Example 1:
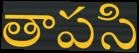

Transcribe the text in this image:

తాపసి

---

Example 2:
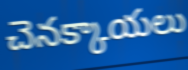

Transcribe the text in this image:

చెనక్కాయలు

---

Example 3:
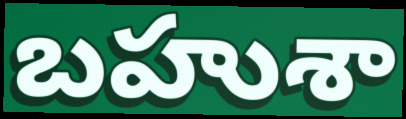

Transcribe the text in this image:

బహుశా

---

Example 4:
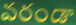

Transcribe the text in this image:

వరండా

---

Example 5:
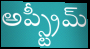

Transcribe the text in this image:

అప్స్ట్రీమ్